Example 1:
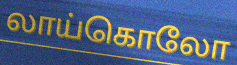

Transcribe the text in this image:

லாய்கொலோ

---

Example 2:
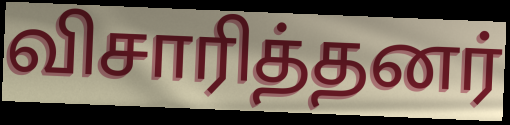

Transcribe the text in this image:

விசாரித்தனர்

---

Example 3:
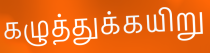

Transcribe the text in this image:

கழுத்துக்கயிறு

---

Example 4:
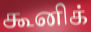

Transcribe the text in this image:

கூனிக்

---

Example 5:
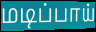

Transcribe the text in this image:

மடிப்பாய்